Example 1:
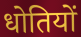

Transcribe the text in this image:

धोतियों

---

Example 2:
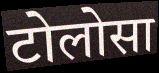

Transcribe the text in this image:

टोलोसा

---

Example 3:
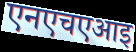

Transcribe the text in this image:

एनएचएआइ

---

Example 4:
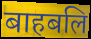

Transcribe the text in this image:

बाहबलि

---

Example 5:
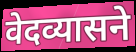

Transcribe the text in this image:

वेदव्यासने